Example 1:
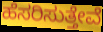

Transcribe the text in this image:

ಹೆಸರಿಸುತ್ತೇವೆ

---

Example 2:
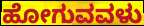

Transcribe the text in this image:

ಹೋಗುವವಳು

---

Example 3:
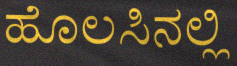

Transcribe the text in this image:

ಹೊಲಸಿನಲ್ಲಿ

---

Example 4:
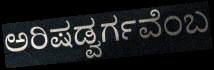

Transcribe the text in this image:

ಅರಿಷಡ್ವರ್ಗವೆಂಬ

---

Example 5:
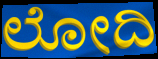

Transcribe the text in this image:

ಲೋದಿ